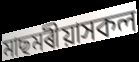
মাছমৰীয়াসকল